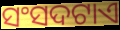
ସଂସଦଟାଏ